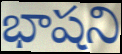
భాషని